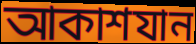
আকাশযান